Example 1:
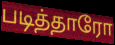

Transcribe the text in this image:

படித்தாரோ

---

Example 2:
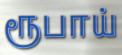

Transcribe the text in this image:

ரூபாய்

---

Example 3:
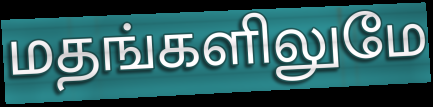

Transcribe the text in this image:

மதங்களிலுமே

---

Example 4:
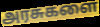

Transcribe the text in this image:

அரசுகளை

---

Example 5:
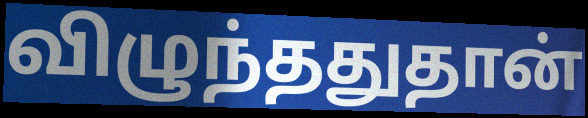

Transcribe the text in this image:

விழுந்ததுதான்